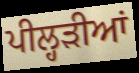
ਪੀਲ੍ਹੜੀਆਂ